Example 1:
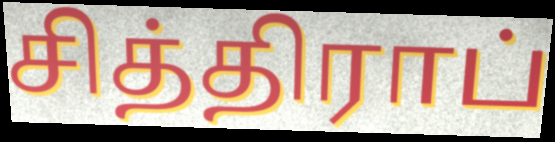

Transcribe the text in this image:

சித்திராப்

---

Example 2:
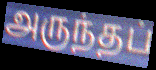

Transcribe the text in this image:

அருந்தப்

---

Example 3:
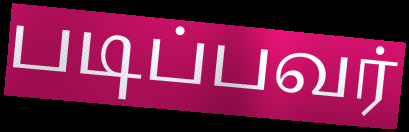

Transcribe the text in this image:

படிப்பவர்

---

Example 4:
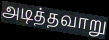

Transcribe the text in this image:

அடித்தவாறு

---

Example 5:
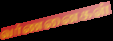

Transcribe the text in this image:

வர்ணனைகள்